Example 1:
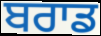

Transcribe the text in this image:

ਬਰਾਡ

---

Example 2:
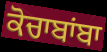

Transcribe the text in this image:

ਕੋਚਾਬਾਂਬਾ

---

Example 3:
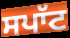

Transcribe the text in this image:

ਸਪਾੱਟ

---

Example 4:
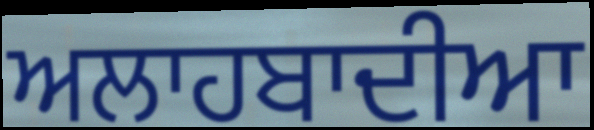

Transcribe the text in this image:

ਅਲਾਹਬਾਦੀਆ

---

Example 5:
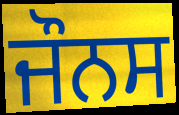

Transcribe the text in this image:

ਜੌਨਸ